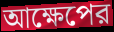
আক্ষেপের